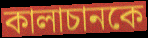
কালাচানকে